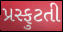
પ્રસ્ફુટતી